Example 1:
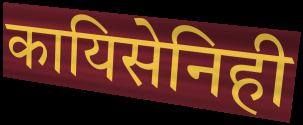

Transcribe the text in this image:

कायिसेनिही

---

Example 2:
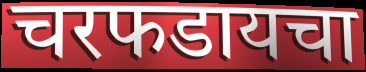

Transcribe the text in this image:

चरफडायचा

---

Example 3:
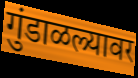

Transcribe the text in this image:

गुंडाळल्यावर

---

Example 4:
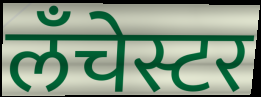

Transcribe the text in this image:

लँचेस्टर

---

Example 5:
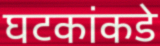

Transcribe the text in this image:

घटकांकडे